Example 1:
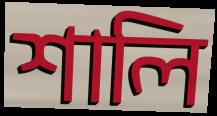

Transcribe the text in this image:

শালি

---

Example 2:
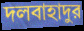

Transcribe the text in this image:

দলবাহাদুর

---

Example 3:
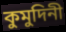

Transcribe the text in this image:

কুমুদিনী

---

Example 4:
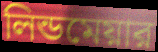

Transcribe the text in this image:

লিন্ডমেয়ার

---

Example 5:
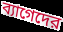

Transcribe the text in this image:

ব্যাগেদের